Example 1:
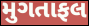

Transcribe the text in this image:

મુગતાફલ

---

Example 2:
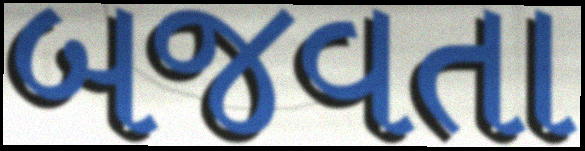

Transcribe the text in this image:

બજવતા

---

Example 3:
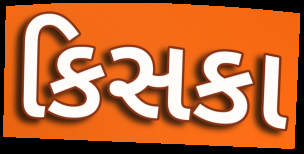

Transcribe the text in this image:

કિસકા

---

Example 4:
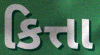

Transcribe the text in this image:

કિત્તા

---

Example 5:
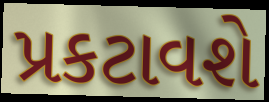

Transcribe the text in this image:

પ્રકટાવશે